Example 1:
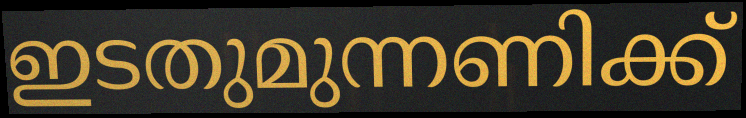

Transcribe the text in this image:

ഇടതുമുന്നണിക്ക്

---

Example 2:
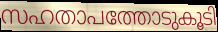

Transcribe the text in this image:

സഹതാപത്തോടുകൂടി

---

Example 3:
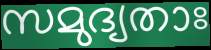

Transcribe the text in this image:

സമുദ്യതാഃ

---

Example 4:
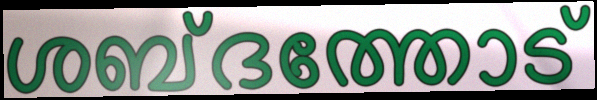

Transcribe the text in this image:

ശബ്ദത്തോട്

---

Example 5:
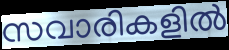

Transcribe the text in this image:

സവാരികളിൽ